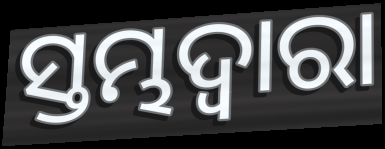
ସ୍ତମ୍ଭଦ୍ୱାରା